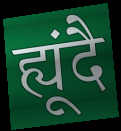
ह्यूंदै